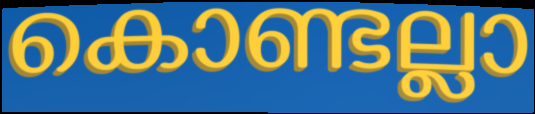
കൊണ്ടല്ലാ